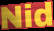
Nid